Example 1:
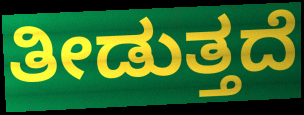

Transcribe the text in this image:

ತೀಡುತ್ತದೆ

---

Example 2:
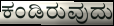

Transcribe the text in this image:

ಕಂಡಿರುವುದು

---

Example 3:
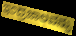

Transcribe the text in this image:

ಇಂದ್ರಜಾಲವನ್ನು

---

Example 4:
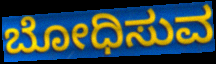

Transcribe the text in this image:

ಬೋಧಿಸುವ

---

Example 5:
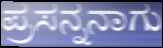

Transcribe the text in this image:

ಪ್ರಸನ್ನನಾಗು